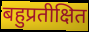
बहुप्रतीक्षित